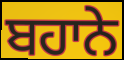
ਬਹਾਨੇ